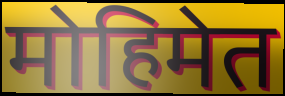
मोहिमेत